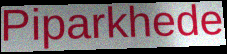
Piparkhede